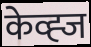
केव्ह्ज